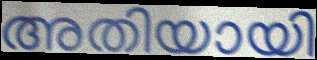
അതിയായി